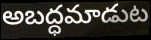
అబద్ధమాడుట